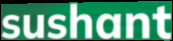
sushant